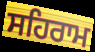
ਸਹਿਰਾਮ